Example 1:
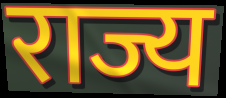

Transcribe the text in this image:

राज्य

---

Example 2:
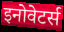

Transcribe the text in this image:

इनोवेटर्स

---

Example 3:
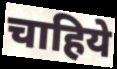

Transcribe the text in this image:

चाहिये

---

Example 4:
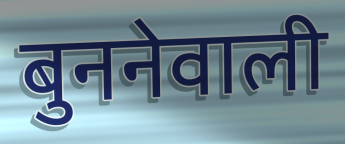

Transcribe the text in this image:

बुननेवाली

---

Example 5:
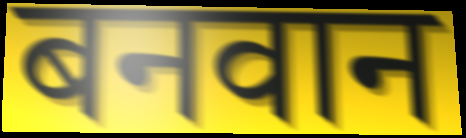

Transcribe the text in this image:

बनवान